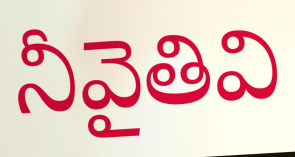
నీవైతివి